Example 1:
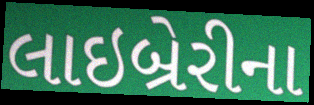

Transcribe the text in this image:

લાઇબ્રેરીના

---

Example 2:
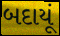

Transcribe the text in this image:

બદાયૂં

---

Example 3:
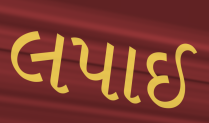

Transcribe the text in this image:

લપાઈ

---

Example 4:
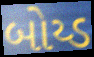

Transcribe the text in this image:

બોય્ડ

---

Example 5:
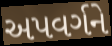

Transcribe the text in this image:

અપવર્ગને